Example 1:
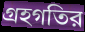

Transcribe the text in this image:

গ্রহগতির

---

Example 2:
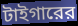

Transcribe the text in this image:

টাইগারের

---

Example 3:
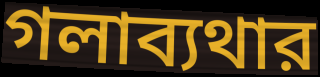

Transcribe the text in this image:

গলাব্যথার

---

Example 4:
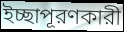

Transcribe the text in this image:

ইচ্ছাপূরণকারী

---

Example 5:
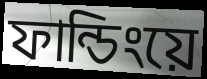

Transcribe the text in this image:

ফান্ডিংয়ে